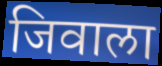
जिवाला